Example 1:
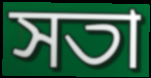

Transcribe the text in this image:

সতা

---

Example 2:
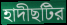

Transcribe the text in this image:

হাদীছটির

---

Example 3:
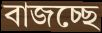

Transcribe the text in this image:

বাজচ্ছে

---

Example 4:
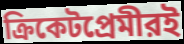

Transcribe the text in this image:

ক্রিকেটপ্রেমীরই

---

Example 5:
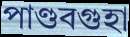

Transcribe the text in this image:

পাণ্ডবগুহা